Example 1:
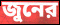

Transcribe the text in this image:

জুনের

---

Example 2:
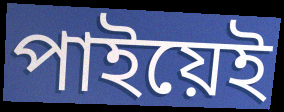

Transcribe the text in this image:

পাইয়েই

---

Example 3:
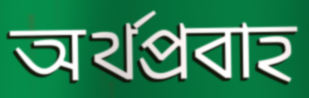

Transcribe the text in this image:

অর্থপ্রবাহ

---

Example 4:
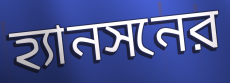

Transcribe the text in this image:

হ্যানসনের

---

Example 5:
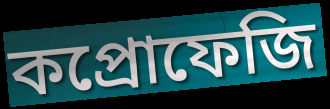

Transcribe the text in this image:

কপ্রোফেজি